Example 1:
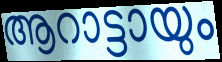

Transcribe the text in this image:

ആറാട്ടായും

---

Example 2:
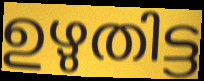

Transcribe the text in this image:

ഉഴുതിട്ട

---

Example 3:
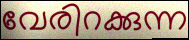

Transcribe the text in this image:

വേരിറക്കുന്ന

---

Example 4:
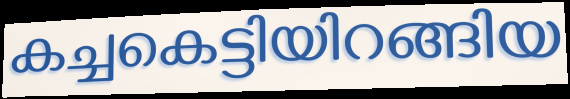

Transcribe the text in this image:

കച്ചകെട്ടിയിറങ്ങിയ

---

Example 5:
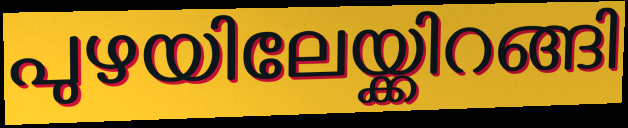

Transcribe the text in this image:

പുഴയിലേയ്ക്കിറങ്ങി